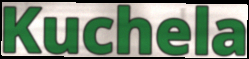
Kuchela